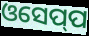
ଓସେପ୍‍ପ